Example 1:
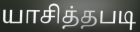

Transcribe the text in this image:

யாசித்தபடி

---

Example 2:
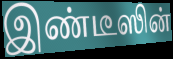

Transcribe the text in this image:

இண்டீஸின்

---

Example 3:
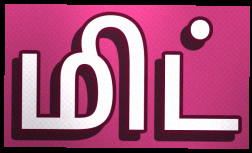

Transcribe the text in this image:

மிட்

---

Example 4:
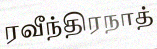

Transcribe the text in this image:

ரவீந்திரநாத்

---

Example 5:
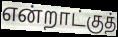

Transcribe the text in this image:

என்றாட்குத்